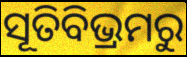
ସୂତିବିଭ୍ରମରୁ